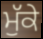
ਮੁੱਕੇ